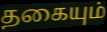
தகையும்